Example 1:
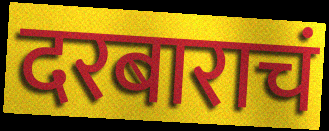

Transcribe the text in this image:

दरबाराचं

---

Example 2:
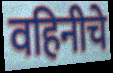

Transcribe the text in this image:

वहिनीचे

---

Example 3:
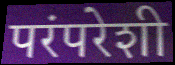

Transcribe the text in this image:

परंपरेशी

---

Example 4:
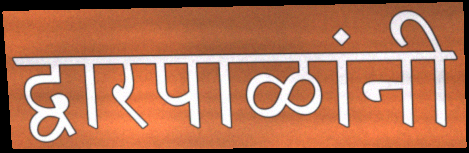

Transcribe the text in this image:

द्वारपाळांनी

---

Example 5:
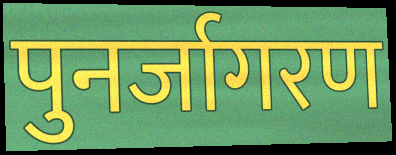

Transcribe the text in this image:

पुनर्जागरण